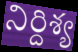
నిర్దిశ్య